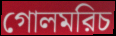
গোলমরিচ